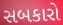
સબકારો